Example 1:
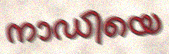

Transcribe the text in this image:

നാഡിയെ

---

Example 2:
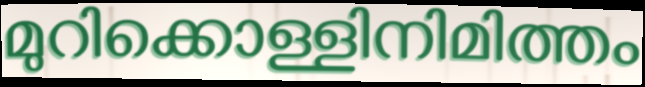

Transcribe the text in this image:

മുറിക്കൊള്ളിനിമിത്തം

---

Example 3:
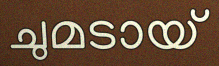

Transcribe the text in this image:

ചുമടായ്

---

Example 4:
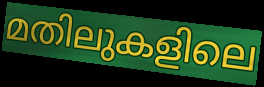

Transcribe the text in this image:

മതിലുകളിലെ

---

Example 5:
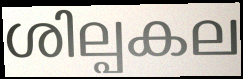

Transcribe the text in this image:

ശില്പകല